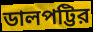
ডালপট্টির